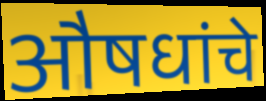
औषधांचे